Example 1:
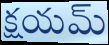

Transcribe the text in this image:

క్షయమ్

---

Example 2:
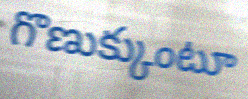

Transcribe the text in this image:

గొణుక్కుంటూ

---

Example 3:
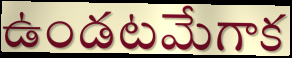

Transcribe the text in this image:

ఉండటమేగాక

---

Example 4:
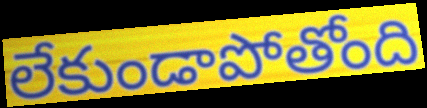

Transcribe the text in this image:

లేకుండాపోతోంది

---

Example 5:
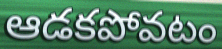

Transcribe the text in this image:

ఆడకపోవటం